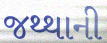
જથ્થાની